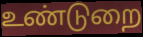
உண்டுறை